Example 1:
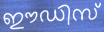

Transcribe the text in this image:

ഈഡിസ്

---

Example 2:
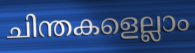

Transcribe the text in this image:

ചിന്തകളെല്ലാം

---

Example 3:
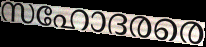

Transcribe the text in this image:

സഹോദരരെ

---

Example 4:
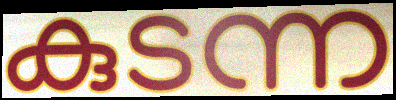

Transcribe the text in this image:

കുടന്ന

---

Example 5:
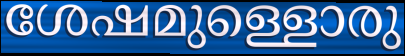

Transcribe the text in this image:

ശേഷമുള്ളൊരു